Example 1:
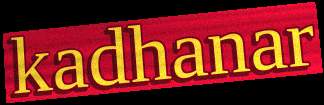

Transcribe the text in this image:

kadhanar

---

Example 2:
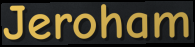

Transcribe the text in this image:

Jeroham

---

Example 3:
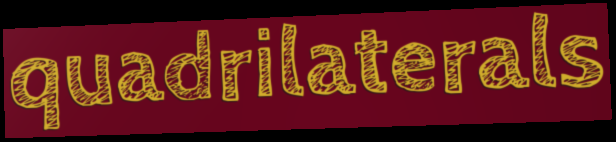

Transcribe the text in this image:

quadrilaterals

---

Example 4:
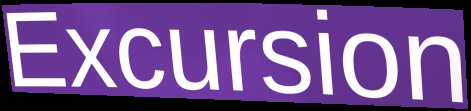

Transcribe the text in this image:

Excursion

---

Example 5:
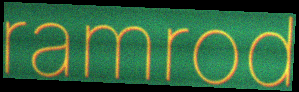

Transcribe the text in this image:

ramrod